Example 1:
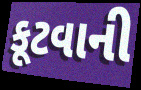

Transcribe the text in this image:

કૂટવાની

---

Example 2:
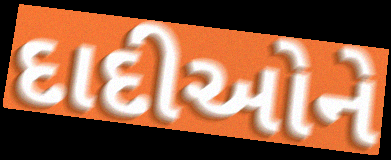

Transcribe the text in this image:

દાદીઓને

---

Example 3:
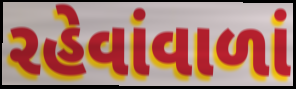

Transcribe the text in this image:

રહેવાંવાળાં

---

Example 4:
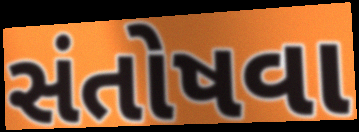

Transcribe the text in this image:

સંતોષવા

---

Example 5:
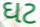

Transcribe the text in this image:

ઘટ